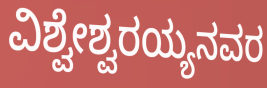
ವಿಶ್ವೇಶ್ವರಯ್ಯನವರ